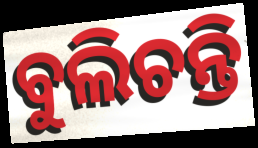
ବୁଲିଚନ୍ତି